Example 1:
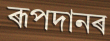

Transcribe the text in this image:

ৰূপদানৰ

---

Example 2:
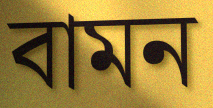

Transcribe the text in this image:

বামন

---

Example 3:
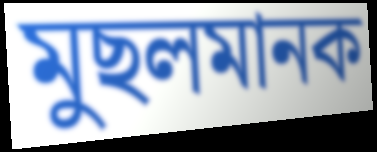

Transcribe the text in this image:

মুছলমানক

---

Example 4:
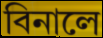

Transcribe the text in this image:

বিনালে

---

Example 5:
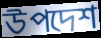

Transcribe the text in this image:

উপদেশ